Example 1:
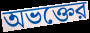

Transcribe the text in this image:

অভক্তের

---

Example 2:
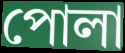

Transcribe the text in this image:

পোলা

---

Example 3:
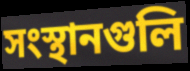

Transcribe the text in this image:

সংস্থানগুলি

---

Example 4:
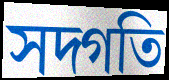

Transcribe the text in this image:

সদ্গতি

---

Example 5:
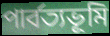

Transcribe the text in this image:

পার্বত্যভূমি